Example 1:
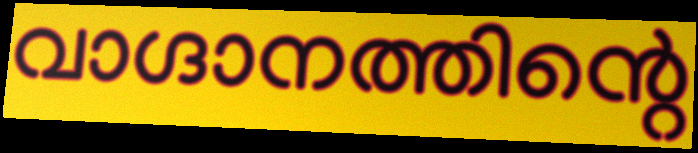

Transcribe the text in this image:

വാഗ്ദാനത്തിന്റെ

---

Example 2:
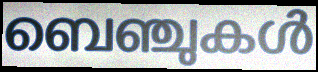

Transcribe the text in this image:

ബെഞ്ചുകൾ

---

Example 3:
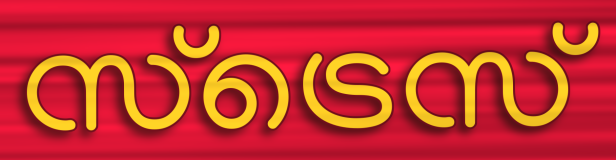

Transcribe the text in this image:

സ്ട്രെസ്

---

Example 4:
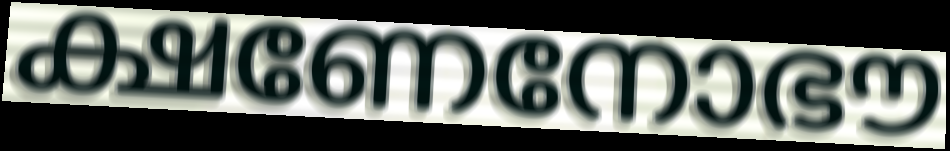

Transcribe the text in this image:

ക്ഷണേനോഭൗ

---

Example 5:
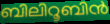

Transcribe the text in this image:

ബിലിറൂബിൻ